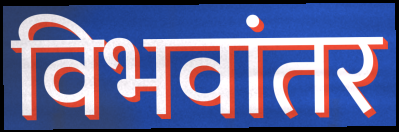
विभवांतर